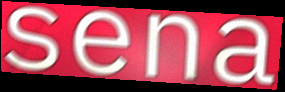
sena